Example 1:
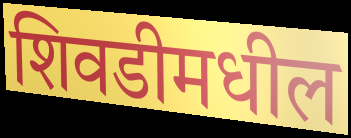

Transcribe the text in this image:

शिवडीमधील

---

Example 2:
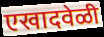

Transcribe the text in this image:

एखादवेळी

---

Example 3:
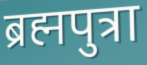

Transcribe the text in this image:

ब्रह्मपुत्रा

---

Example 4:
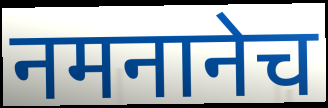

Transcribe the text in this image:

नमनानेच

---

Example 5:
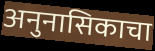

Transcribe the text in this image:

अनुनासिकाचा